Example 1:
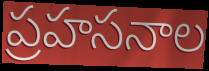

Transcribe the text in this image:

ప్రహసనాల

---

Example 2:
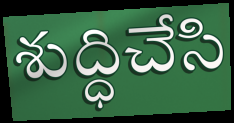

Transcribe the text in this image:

శుద్ధిచేసి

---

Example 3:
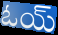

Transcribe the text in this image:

ఓయ్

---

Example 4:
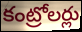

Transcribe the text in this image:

కంట్రోలర్లు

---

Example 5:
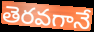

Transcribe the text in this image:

తెరవగానే